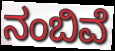
ನಂಬಿವೆ